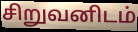
சிறுவனிடம்